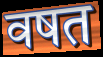
वषत